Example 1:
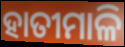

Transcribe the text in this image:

ହାତୀମାଳି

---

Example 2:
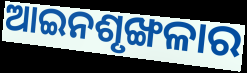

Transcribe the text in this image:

ଆଇନଶୃଙ୍ଖଳାର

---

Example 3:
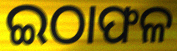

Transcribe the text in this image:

ଇଠାଫଳ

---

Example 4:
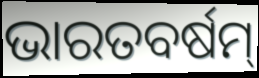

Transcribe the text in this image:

ଭାରତବର୍ଷମ୍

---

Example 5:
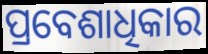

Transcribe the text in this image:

ପ୍ରବେଶାଧିକାର